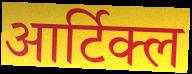
आर्टिक्ल